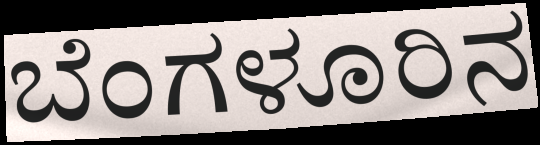
ಬೆಂಗಳೂರಿನ